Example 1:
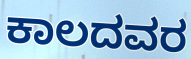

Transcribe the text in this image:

ಕಾಲದವರ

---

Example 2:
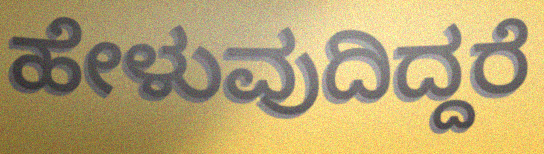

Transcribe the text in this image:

ಹೇಳುವುದಿದ್ದರೆ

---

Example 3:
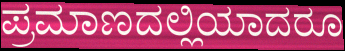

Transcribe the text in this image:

ಪ್ರಮಾಣದಲ್ಲಿಯಾದರೂ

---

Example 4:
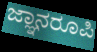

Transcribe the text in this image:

ಜ್ಞಾನರೂಪಿ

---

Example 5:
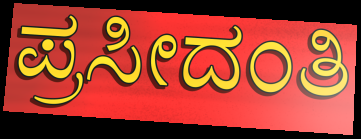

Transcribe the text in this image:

ಪ್ರಸೀದಂತಿ